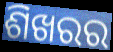
ଶିଖରର